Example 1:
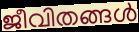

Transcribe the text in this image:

ജീവിതങ്ങൾ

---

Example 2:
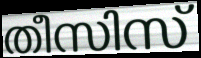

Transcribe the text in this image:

തീസിസ്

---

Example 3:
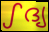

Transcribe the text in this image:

ഽദ്യ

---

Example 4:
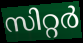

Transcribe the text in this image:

സിറ്റർ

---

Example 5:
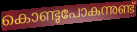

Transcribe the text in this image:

കൊണ്ടുപോകുന്നുണ്ട്